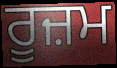
ਰੂਜ਼ਮ